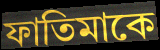
ফাতিমাকে